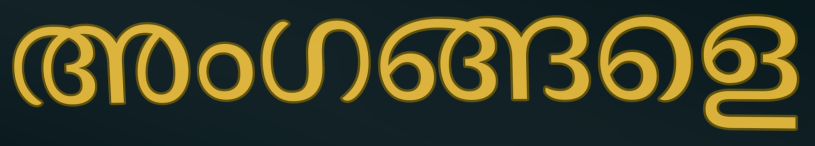
അംഗങ്ങളെ